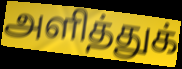
அளித்துக்